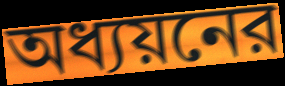
অধ্যয়নের